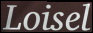
Loisel